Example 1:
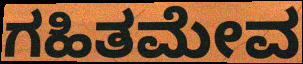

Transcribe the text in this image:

ಗಹಿತಮೇವ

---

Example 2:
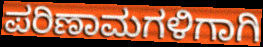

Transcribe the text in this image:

ಪರಿಣಾಮಗಳಿಗಾಗಿ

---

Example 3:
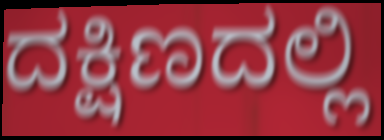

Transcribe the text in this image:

ದಕ್ಷಿಣದಲ್ಲಿ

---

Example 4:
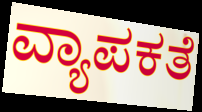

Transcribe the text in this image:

ವ್ಯಾಪಕತೆ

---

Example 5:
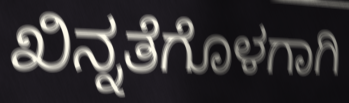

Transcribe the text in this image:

ಖಿನ್ನತೆಗೊಳಗಾಗಿ